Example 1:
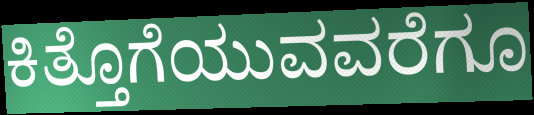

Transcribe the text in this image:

ಕಿತ್ತೊಗೆಯುವವರೆಗೂ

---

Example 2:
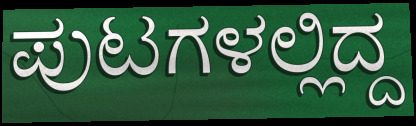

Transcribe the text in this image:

ಪುಟಗಳಲ್ಲಿದ್ದ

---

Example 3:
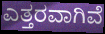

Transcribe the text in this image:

ಎತ್ತರವಾಗಿವೆ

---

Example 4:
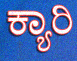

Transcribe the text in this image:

ಕ್ಯಾರಿ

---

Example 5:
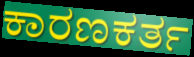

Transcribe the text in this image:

ಕಾರಣಕರ್ತ